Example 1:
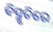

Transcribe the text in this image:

ବିସ୍ମୃତିରେ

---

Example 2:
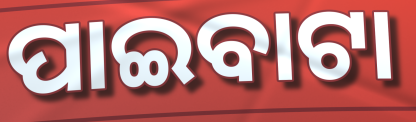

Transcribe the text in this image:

ପାଇବାଟା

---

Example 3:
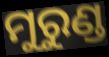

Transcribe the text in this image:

ମୁରୁଣ୍ଡ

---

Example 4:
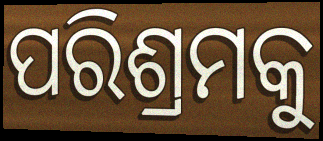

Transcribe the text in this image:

ପରିଶ୍ରମକୁ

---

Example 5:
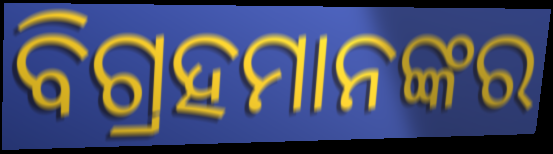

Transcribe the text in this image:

ବିଗ୍ରହମାନଙ୍କର